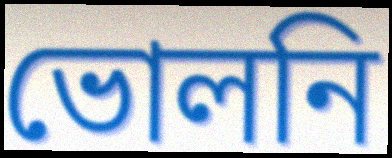
ভোলনি